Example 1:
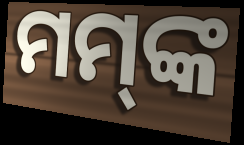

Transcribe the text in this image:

ମମ୍‍ଙ୍କ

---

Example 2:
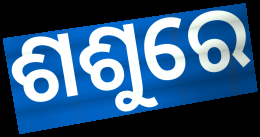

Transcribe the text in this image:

ଶଶୁରେ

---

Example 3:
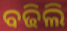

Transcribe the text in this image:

ବଢିଲି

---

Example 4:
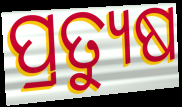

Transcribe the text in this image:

ପ୍ରତ୍ୟୁଷ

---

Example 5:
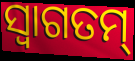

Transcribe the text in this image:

ସ୍ୱାଗତମ୍